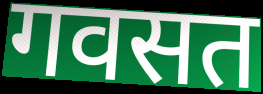
गवसत